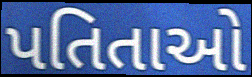
પતિતાઓ